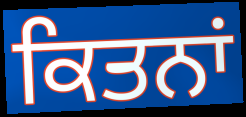
ਕਿਤਨਾਂ